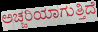
ಅಚ್ಚರಿಯಾಗುತ್ತಿದೆ